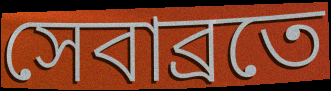
সেবাব্রতে